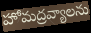
హోమద్రవ్యాలను